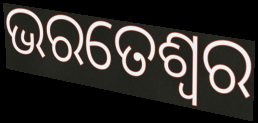
ଭରତେଶ୍ଵର